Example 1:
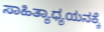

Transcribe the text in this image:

ಸಾಹಿತ್ಯಾಧ್ಯಯನಕ್ಕೆ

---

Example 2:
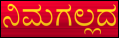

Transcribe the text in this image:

ನಿಮಗಲ್ಲದ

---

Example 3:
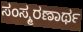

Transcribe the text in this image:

ಸಂಸ್ಮರಣಾರ್ಥ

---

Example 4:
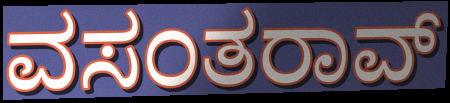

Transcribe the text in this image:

ವಸಂತರಾವ್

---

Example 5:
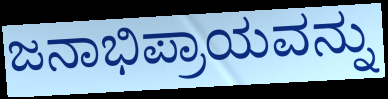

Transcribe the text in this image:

ಜನಾಭಿಪ್ರಾಯವನ್ನು